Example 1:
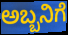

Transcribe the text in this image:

ಅಬ್ಬನಿಗೆ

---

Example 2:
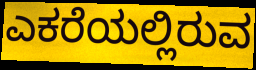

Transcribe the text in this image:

ಎಕರೆಯಲ್ಲಿರುವ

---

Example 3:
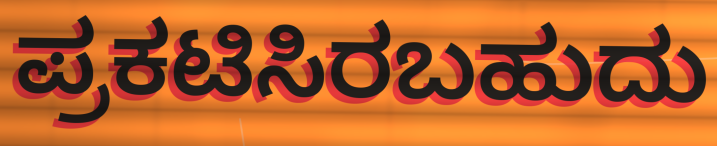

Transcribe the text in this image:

ಪ್ರಕಟಿಸಿರಬಹುದು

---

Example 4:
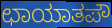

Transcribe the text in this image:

ಛಾಯಾತಪೌ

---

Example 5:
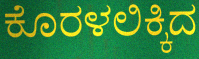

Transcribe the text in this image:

ಕೊರಳಲಿಕ್ಕಿದ